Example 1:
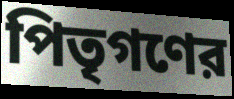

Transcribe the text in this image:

পিতৃগণের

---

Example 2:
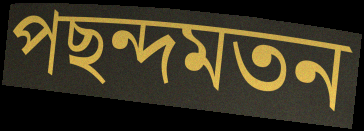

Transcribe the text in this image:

পছন্দমতন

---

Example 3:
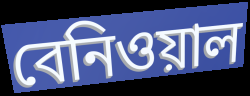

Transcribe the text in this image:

বেনিওয়াল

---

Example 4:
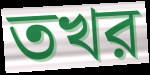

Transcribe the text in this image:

তখর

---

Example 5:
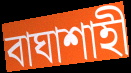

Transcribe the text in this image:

বাঘাশাহী